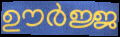
ഊർജ്ജ